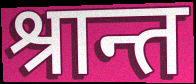
श्रान्त